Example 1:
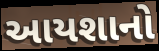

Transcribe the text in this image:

આયશાનો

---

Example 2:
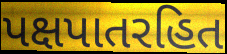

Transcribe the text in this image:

પક્ષપાતરહિત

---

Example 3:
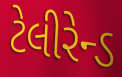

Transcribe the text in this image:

ટેલીરેન્ડ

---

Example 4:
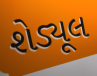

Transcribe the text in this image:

શેડ્યૂલ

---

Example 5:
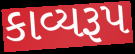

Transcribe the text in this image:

કાવ્યરૂપ